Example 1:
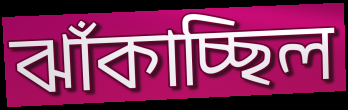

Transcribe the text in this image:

ঝাঁকাচ্ছিল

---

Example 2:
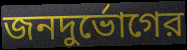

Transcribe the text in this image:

জনদুর্ভোগের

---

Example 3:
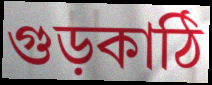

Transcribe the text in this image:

গুড়কাঠি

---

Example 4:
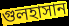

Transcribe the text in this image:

গুলহাসান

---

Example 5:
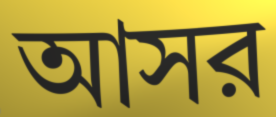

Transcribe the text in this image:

আসর